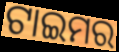
ଟାଇମର